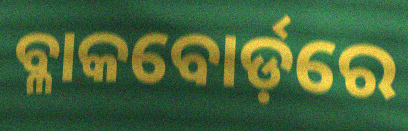
ବ୍ଳାକବୋର୍ଡ଼ରେ